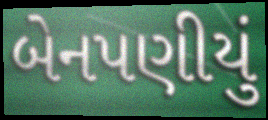
બેનપણીયું